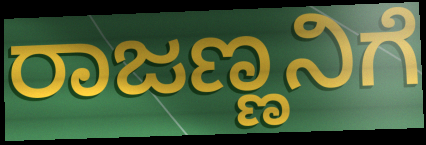
ರಾಜಣ್ಣನಿಗೆ